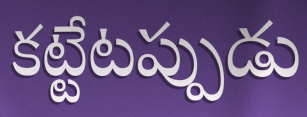
కట్టేటప్పుడు